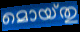
മൊയ്‌തു